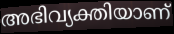
അഭിവ്യക്തിയാണ്